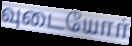
வுடையோர்